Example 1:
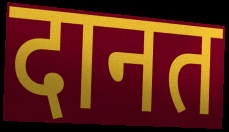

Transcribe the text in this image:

दानत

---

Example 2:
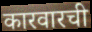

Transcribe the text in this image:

कारवारची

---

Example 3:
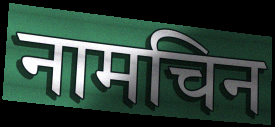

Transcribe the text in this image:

नामचिन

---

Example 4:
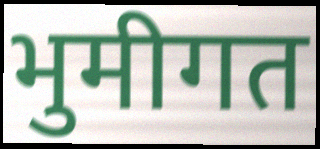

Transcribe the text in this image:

भुमीगत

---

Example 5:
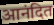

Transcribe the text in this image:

आनंदित